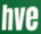
hve